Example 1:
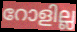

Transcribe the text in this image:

റോളില്ല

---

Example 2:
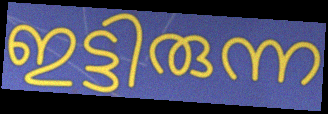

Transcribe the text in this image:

ഇട്ടിരുന്ന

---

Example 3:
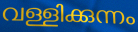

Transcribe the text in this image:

വള്ളിക്കുന്നം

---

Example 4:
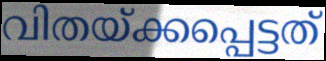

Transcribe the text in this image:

വിതയ്ക്കപ്പെട്ടത്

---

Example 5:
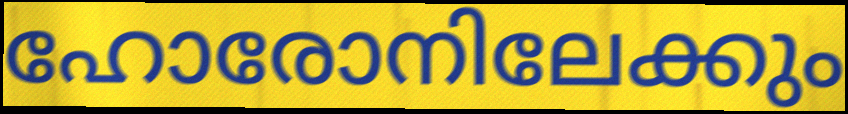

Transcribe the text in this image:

ഹോരോനിലേക്കും